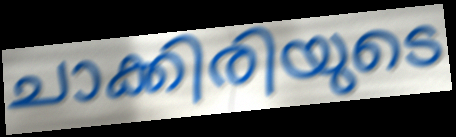
ചാക്കിരിയുടെ